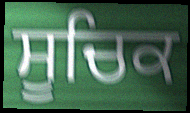
ਸੂਚਿਕ